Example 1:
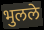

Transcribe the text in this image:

भुलले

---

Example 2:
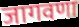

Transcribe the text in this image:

जागवणा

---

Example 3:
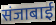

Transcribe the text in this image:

संजाबाई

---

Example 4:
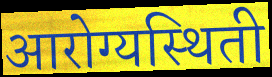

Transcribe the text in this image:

आरोग्यस्थिती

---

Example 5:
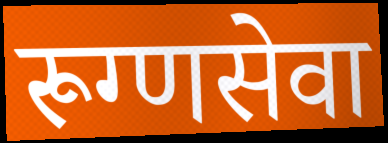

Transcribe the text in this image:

रूग्णसेवा